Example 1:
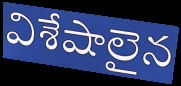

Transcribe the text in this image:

విశేషాలైన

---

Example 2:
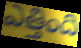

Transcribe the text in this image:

ఎత్తింది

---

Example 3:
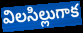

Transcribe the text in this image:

విలసిల్లుగాక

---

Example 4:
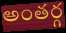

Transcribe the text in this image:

అంతర్గ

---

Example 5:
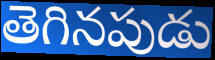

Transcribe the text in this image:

తెగినపుడు